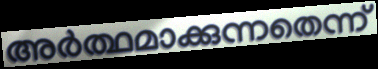
അർത്ഥമാക്കുന്നതെന്ന്